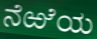
ನೆಱೆಯ